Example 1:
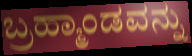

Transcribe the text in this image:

ಬ್ರಹ್ಮಾಂಡವನ್ನು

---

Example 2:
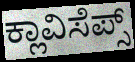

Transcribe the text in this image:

ಕ್ಲಾವಿಸೆಪ್ಸ್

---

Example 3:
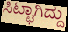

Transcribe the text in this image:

ಸಿಟ್ಟಾಗಿದ್ದು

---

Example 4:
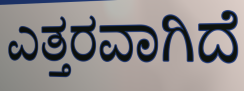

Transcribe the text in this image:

ಎತ್ತರವಾಗಿದೆ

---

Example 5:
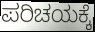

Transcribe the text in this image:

ಪರಿಚಯಕ್ಕೆ